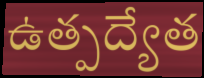
ఉత్పద్యేత